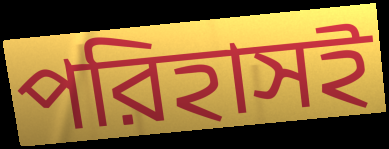
পরিহাসই